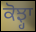
ਕੋਝ੍ਹਾ